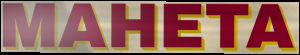
MAHETA